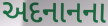
અદનાનના